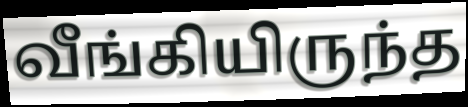
வீங்கியிருந்த